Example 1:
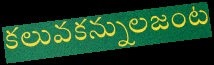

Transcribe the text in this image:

కలువకన్నులజంట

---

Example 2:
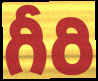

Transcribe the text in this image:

గీరి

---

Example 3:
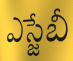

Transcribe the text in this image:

ఎస్జేబీ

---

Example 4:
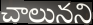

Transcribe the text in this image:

చాలునని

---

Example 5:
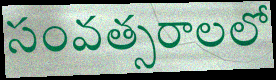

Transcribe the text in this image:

సంవత్సరాలలో